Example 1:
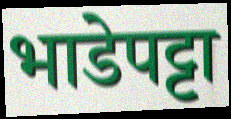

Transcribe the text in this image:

भाडेपट्टा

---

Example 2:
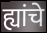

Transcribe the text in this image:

ह्यांचे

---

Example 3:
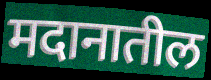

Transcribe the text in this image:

मदानातील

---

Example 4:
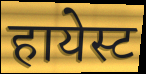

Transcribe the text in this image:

हायेस्ट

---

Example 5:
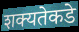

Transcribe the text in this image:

शक्यतेकडे